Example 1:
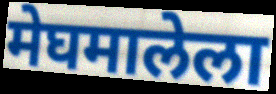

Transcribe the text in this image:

मेघमालेला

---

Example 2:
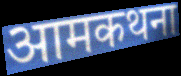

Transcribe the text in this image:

आमकथना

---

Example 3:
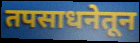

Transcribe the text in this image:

तपसाधनेतून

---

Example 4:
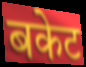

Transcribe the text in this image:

बकेट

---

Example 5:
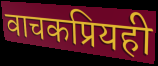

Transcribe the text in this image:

वाचकप्रियही